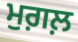
ਮੁਗ਼ਲ਼